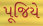
પૂજિયે